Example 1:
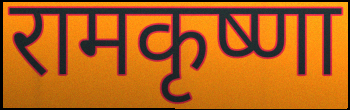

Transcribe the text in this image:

रामकृष्णा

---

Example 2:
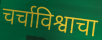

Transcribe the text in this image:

चर्चाविश्वाचा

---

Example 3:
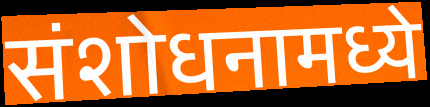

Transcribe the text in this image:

संशोधनामध्ये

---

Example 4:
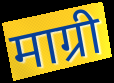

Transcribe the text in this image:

माग्री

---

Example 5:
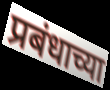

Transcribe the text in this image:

प्रबंधाच्या